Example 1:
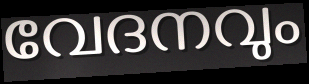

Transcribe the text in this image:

വേദനവും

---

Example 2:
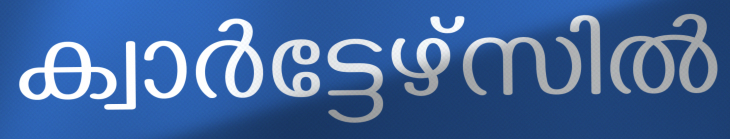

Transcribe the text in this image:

ക്വാർട്ടേഴ്സിൽ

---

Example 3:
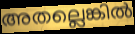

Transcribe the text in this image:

അതല്ലെങ്കിൽ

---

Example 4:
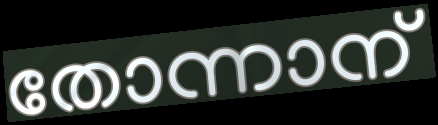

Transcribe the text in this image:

തോന്നാന്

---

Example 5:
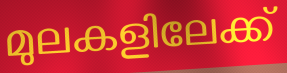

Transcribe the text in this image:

മുലകളിലേക്ക്